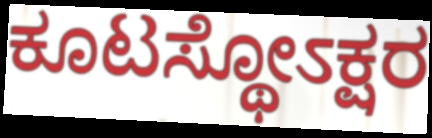
ಕೂಟಸ್ಥೋಽಕ್ಷರ